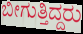
ಬೀಗುತ್ತಿದ್ದರು